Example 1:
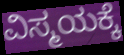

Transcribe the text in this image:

ವಿಸ್ಮಯಕ್ಕೆ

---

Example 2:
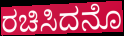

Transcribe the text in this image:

ರಚಿಸಿದನೊ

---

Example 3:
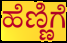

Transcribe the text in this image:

ಹೆಣ್ಣಿಗೆ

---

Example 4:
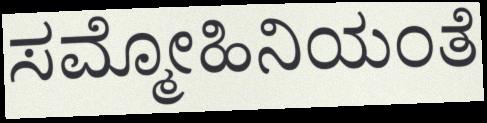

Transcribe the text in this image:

ಸಮ್ಮೋಹಿನಿಯಂತೆ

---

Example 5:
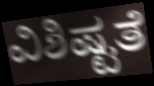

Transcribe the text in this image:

ವಿಶಿಷ್ಟತೆ